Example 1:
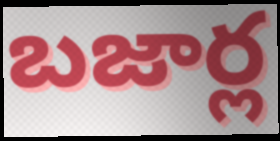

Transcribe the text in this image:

బజార్ల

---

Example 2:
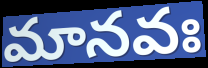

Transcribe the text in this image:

మానవః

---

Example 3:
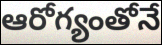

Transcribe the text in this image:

ఆరోగ్యంతోనే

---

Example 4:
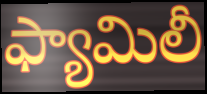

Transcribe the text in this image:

ఫ్యామిలీ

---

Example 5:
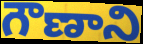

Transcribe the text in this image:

గౌణాని